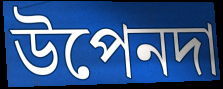
উপেনদা